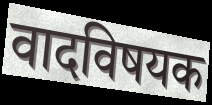
वादविषयक